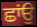
ਛਾਂਉ